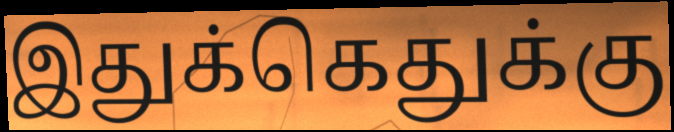
இதுக்கெதுக்கு